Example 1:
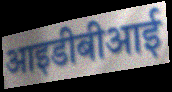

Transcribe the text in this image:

आइडीबीआई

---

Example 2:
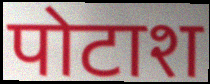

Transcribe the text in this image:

पोटाश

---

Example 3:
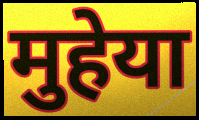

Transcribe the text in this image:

मुहेया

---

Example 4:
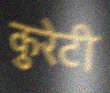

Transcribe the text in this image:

कुरेटी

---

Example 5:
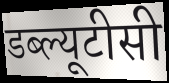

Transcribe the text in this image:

डब्ल्यूटीसी